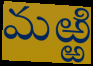
మఱ్ఱి